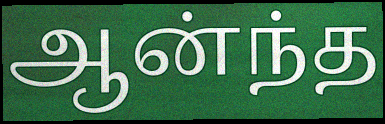
ஆன்ந்த